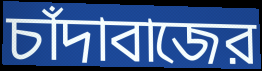
চাঁদাবাজের